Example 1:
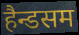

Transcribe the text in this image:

हैन्डसम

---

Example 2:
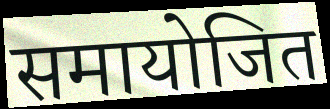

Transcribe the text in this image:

समायोजित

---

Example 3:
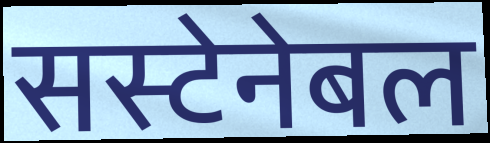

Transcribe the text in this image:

सस्टेनेबल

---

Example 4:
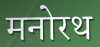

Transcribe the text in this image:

मनोरथ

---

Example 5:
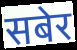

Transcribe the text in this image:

सबेर